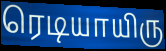
ரெடியாயிரு